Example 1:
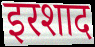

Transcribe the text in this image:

इरशाद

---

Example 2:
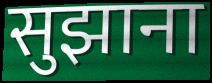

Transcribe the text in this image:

सुझाना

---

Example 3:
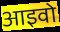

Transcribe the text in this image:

आइवो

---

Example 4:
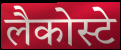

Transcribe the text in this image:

लैकोस्टे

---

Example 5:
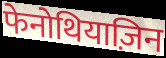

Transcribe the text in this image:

फेनोथियाज़िन